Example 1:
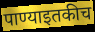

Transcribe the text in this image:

पाण्याइतकीच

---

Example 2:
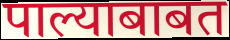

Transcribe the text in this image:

पाल्याबाबत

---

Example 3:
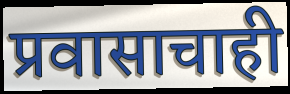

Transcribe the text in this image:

प्रवासाचाही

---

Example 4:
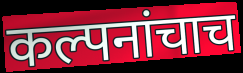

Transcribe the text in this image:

कल्पनांचाच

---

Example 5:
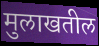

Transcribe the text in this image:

मुलाखतील